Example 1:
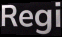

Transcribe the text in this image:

Regi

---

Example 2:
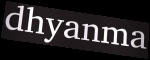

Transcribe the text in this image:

dhyanma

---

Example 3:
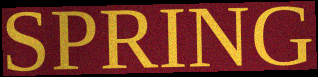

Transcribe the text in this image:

SPRING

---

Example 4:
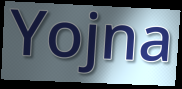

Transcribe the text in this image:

Yojna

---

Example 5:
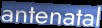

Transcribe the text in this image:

antenatal